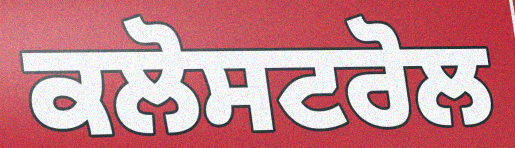
ਕਲੋਸਟਰੋਲ